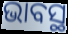
ଭାବସ୍ଥ